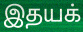
இதயக்